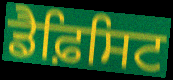
ਡੈਫ਼ਿਸਿਟ